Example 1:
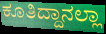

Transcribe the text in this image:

ಕೂತಿದ್ದಾನಲ್ಲಾ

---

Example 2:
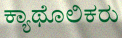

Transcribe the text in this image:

ಕ್ಯಾಥೊಲಿಕರು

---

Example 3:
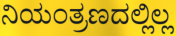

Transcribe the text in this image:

ನಿಯಂತ್ರಣದಲ್ಲಿಲ್ಲ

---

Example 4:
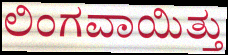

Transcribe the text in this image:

ಲಿಂಗವಾಯಿತ್ತು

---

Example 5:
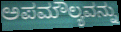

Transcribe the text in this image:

ಅಪಮೌಲ್ಯವನ್ನು